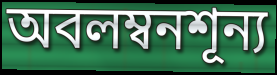
অবলম্বনশূন্য